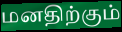
மனதிற்கும்